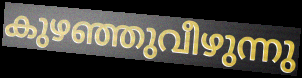
കുഴഞ്ഞുവീഴുന്നു